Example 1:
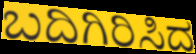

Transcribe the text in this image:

ಬದಿಗಿರಿಸಿದ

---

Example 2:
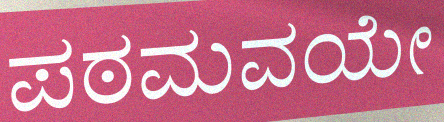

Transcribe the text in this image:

ಪಠಮವಯೇ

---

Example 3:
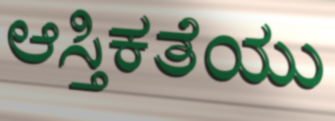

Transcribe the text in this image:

ಆಸ್ತಿಕತೆಯು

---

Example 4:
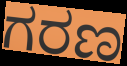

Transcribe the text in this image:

ಗರಣ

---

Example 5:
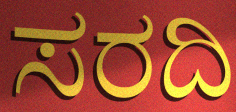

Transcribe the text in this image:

ಸರದಿ